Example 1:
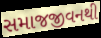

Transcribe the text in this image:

સમાજજીવનથી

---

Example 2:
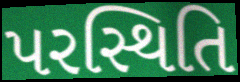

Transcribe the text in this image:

પરસ્થિતિ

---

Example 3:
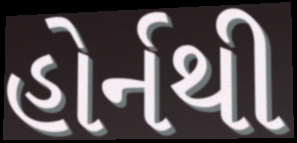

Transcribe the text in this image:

હોર્નથી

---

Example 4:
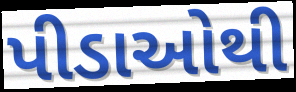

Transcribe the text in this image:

પીડાઓથી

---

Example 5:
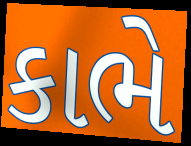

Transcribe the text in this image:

કાભે